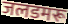
जलडमरू